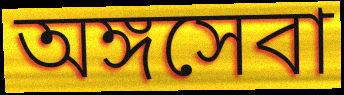
অঙ্গসেবা